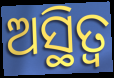
ଅସ୍ଥିତ୍ଵ